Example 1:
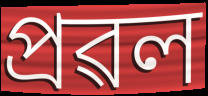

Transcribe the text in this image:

প্ৰৱল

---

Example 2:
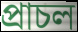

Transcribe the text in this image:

প্ৰাচল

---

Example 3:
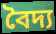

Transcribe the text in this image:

বৈদ্য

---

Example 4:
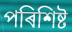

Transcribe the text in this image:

পৰিশিষ্ট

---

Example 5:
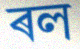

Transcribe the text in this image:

ৰল